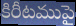
కిరీటముపై